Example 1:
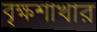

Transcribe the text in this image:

বৃক্ষশাখার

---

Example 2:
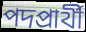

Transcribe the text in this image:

পদপ্রার্থী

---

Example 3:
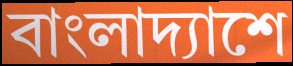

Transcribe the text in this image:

বাংলাদ্যাশে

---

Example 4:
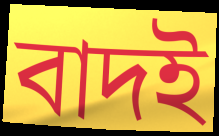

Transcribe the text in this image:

বাদই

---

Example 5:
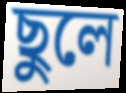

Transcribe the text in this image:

ছুলে